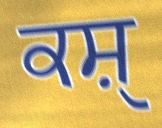
ਕਸ਼ੑ